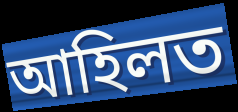
আহিলত